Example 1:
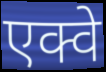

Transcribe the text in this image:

एक्वे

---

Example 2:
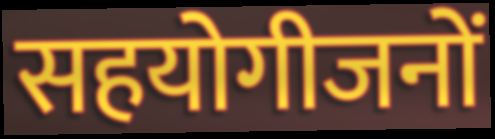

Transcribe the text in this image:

सहयोगीजनों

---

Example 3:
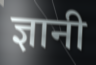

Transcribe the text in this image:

ज्ञानी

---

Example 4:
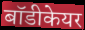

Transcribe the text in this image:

बॉडीकेयर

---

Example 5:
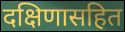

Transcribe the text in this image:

दक्षिणासहित